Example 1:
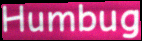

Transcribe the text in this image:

Humbug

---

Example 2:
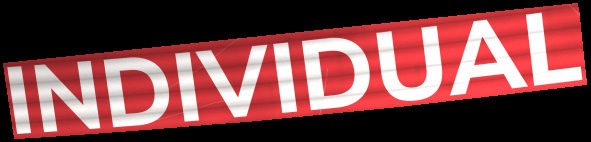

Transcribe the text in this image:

INDIVIDUAL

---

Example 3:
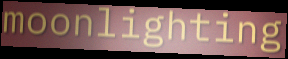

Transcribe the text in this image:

moonlighting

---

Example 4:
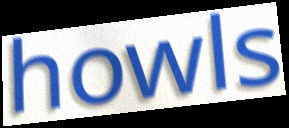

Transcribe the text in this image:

howls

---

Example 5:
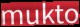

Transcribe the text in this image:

mukto